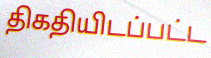
திகதியிடப்பட்ட